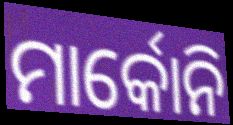
ମାର୍କୋନି